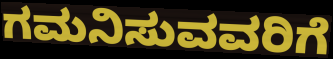
ಗಮನಿಸುವವರಿಗೆ